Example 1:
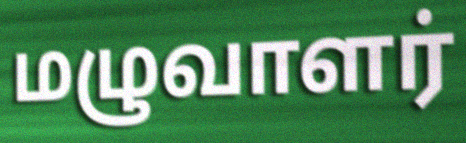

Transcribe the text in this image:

மழுவாளர்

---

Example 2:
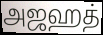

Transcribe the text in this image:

அஜஹத்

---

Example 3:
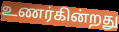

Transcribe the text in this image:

உணர்கின்றது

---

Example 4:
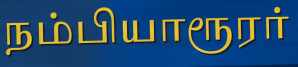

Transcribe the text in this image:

நம்பியாரூரர்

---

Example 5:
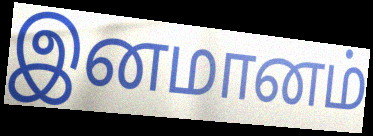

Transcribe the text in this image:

இனமானம்